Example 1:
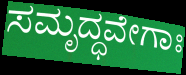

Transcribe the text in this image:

ಸಮೃದ್ಧವೇಗಾಃ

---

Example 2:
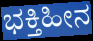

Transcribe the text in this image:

ಭಕ್ತಿಹೀನ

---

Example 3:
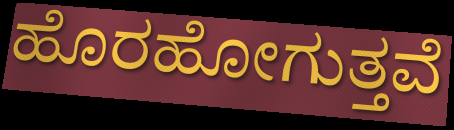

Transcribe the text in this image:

ಹೊರಹೋಗುತ್ತವೆ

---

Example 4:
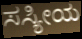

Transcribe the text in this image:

ಸಸ್ಯೀಯ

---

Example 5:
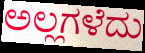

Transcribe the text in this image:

ಅಲ್ಲಗಳೆದು